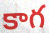
కాగ